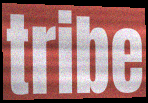
tribe